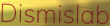
Dismislab